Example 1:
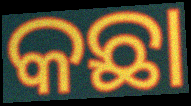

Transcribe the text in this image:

କଛା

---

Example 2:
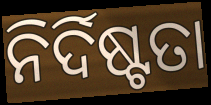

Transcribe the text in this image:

ନିର୍ଦିଷ୍ଟତା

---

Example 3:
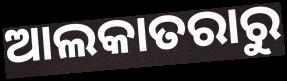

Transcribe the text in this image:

ଆଲକାତରାରୁ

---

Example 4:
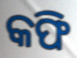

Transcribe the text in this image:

କଫି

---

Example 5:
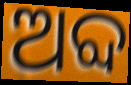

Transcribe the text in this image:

ଅବ୍ଦ